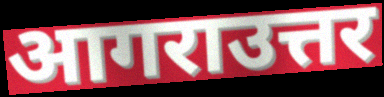
आगराउत्तर